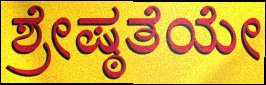
ಶ್ರೇಷ್ಠತೆಯೇ